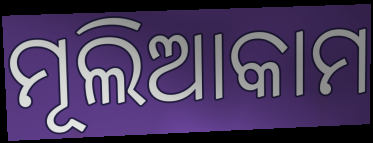
ମୂଲିଆକାମ